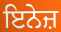
ਇਨੇਜ਼